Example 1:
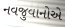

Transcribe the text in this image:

નવજુવાનોએ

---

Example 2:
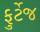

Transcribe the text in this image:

ફુર્ટેજ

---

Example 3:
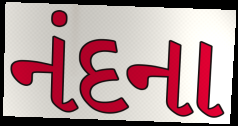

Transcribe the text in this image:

નંદના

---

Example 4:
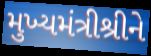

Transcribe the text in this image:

મુખ્યમંત્રીશ્રીને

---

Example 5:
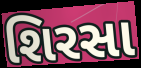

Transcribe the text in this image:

શિરસા